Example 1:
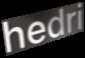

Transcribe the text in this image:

hedri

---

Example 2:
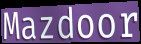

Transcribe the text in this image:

Mazdoor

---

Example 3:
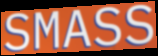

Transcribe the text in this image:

SMASS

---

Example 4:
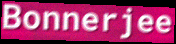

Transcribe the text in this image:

Bonnerjee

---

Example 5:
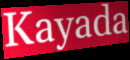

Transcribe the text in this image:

Kayada